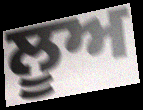
ਲੂਅ